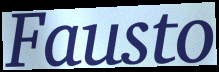
Fausto